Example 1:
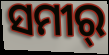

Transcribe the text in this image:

ସମୀର୍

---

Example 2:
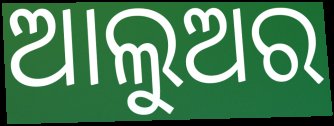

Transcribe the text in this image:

ଆଲୁଅର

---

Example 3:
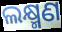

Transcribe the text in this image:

ଲକ୍ଷ୍ମଣ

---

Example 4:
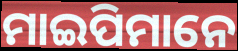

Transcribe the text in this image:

ମାଇପିମାନେ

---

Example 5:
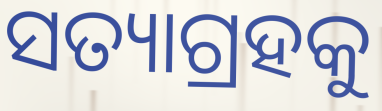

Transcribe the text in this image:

ସତ୍ୟାଗ୍ରହକୁ